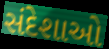
સંદેશાઓ